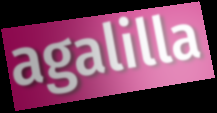
agalilla